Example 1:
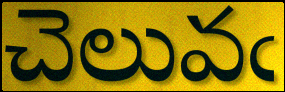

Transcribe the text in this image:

చెలువఁ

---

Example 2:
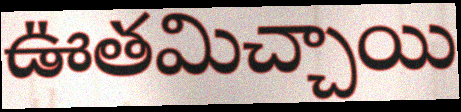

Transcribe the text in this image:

ఊతమిచ్చాయి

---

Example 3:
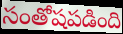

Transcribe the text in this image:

సంతోషపడింది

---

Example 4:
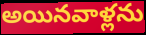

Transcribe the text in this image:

అయినవాళ్లను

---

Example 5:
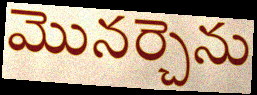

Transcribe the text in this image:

మొనర్చెను